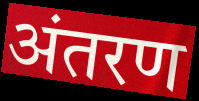
अंतरण